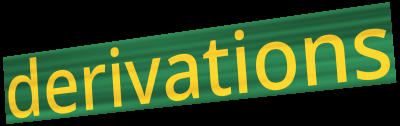
derivations